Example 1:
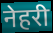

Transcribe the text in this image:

नेहरी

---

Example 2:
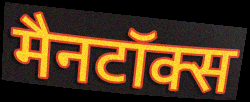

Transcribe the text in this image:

मैनटॉक्स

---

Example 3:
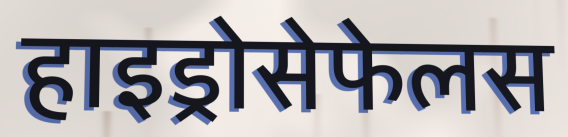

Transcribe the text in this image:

हाइड्रोसेफेलस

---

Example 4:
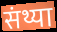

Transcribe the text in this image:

संथ्या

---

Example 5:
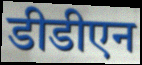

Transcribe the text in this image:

डीडीएन